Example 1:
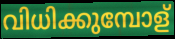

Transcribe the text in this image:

വിധിക്കുമ്പോള്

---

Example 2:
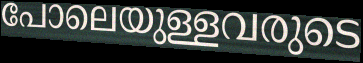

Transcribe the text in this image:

പോലെയുള്ളവരുടെ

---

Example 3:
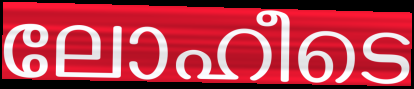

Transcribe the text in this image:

ലോഹീടെ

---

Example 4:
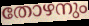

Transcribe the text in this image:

തോഴനും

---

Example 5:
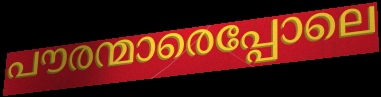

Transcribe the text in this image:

പൗരന്മാരെപ്പോലെ